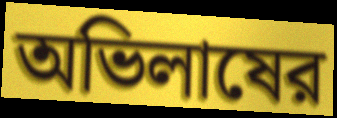
অভিলাষের